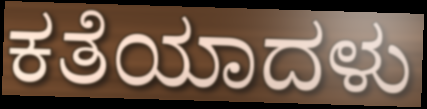
ಕತೆಯಾದಳು